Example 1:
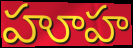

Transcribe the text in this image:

హూహ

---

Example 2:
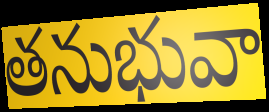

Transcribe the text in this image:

తనుభువా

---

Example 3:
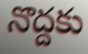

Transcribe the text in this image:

నొద్దకు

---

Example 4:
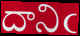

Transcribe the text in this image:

దానిఁ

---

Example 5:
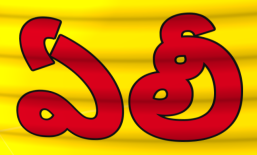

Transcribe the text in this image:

ఏలీ